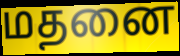
மதனை